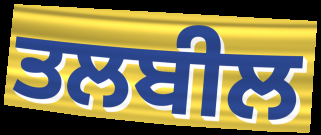
ਤਲਬੀਲ